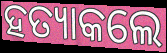
ହତ୍ୟାକଲେ